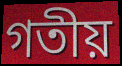
গতীয়